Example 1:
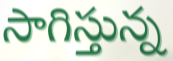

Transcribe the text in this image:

సాగిస్తున్న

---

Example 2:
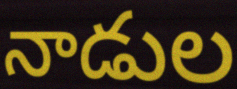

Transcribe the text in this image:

నాడుల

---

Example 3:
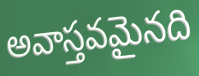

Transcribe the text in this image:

అవాస్తవమైనది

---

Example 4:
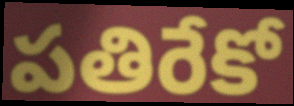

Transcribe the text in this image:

పతిరేకో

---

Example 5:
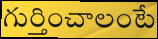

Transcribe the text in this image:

గుర్తించాలంటే